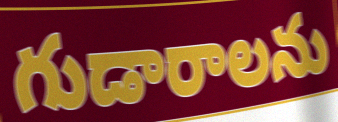
గుడారాలను